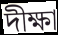
দীক্ষা